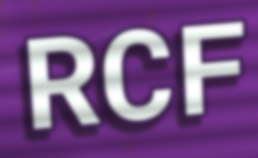
RCF